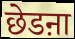
छेडऩा